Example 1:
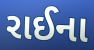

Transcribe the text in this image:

રાઈના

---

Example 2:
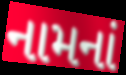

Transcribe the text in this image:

નામનાં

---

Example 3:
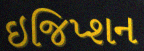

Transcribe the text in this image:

ઇજિપ્શન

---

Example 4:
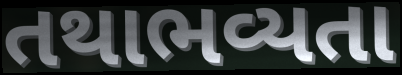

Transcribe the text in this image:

તથાભવ્યતા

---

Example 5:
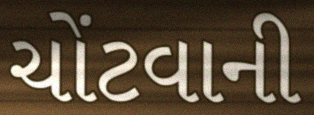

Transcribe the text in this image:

ચોંટવાની